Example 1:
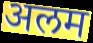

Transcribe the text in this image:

अलम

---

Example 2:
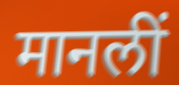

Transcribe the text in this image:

मानलीं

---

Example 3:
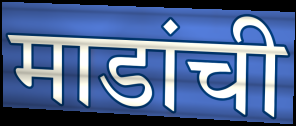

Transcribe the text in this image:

माडांची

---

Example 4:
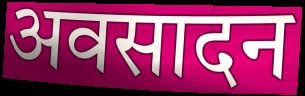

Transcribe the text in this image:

अवसादन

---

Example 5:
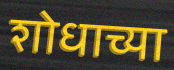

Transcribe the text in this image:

शोधाच्या